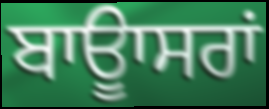
ਬਾਊਾਸਰਾਂ